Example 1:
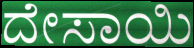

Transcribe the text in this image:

ದೇಸಾಯಿ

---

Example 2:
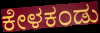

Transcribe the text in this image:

ಕೇಳಕಂಡು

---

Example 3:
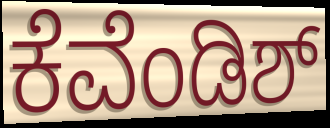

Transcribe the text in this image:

ಕೆವೆಂಡಿಶ್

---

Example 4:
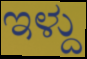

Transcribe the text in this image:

ಇಳ್ದು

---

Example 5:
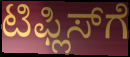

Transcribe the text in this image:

ಟಿಫ್ಲಿಸ್‍ಗೆ